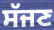
ਸੱਜਣ